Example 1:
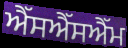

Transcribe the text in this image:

ਐੱਸਐੱਸਐੱਮ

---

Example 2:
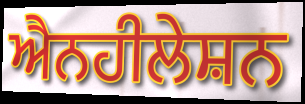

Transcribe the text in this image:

ਐਨਹੀਲੇਸ਼ਨ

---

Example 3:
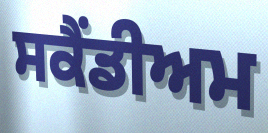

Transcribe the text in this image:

ਸਕੈਂਡੀਅਮ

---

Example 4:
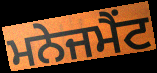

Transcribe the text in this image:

ਮਨੇਜਮੈਂਟ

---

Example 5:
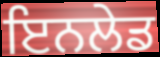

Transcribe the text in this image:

ਇਨਲੇਡ